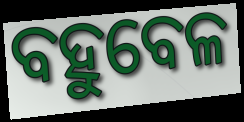
ବହୁବେଳ